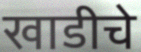
खाडीचे